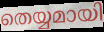
തെയ്യമായി